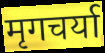
मृगचर्या